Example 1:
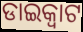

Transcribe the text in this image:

ଡାଇକ୍ଵାଟ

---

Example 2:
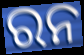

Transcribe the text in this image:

ରନ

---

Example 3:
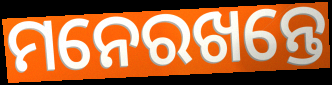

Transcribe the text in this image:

ମନେରଖନ୍ତେ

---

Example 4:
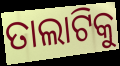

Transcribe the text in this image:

ତାଲାଟିକୁ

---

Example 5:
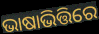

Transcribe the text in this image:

ଭାଷାଭିତ୍ତିରେ